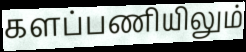
களப்பணியிலும்